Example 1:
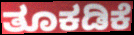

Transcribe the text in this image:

ತೂಕಡಿಕೆ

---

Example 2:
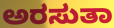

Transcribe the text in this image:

ಅರಸುತಾ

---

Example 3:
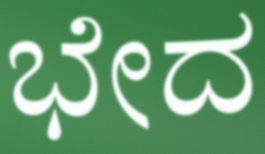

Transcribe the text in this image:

ಭೇದ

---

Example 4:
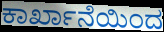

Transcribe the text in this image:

ಕಾರ್ಖಾನೆಯಿಂದ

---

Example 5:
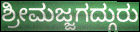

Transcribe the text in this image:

ಶ್ರೀಮಜ್ಜಗದ್ಗುರು